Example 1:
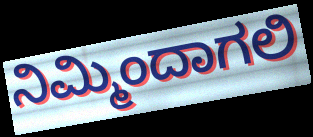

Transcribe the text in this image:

ನಿಮ್ಮಿಂದಾಗಲಿ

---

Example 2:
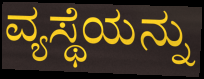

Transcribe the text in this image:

ವ್ಯಸ್ಥೆಯನ್ನು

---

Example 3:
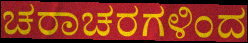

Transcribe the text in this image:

ಚರಾಚರಗಳಿಂದ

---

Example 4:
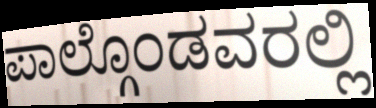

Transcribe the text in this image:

ಪಾಲ್ಗೊಂಡವರಲ್ಲಿ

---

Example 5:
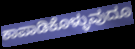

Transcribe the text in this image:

ಕಾಪಾಡಿಕೊಳ್ಳುವುದೂ